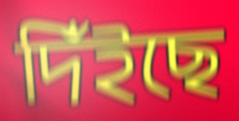
দিঁইছে